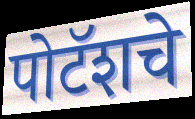
पोटॅशचे